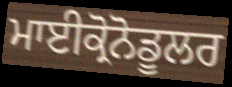
ਮਾਈਕ੍ਰੋਨੋਡੂਲਰ